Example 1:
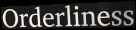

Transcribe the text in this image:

Orderliness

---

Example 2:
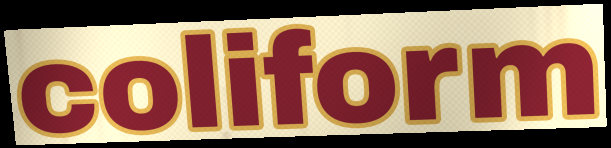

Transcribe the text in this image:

coliform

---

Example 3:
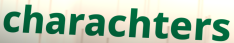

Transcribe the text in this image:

charachters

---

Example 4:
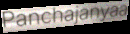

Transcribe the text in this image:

Panchajanyaa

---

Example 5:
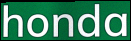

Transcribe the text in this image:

honda